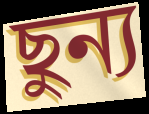
ছুন্য